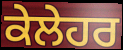
ਕੇਲੇਹਰ